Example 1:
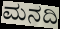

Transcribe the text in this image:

ಮನದಿ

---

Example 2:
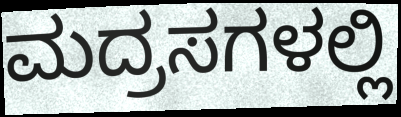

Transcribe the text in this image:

ಮದ್ರಸಗಳಲ್ಲಿ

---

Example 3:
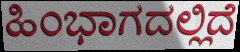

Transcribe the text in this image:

ಹಿಂಭಾಗದಲ್ಲಿದೆ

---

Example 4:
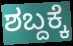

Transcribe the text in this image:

ಶಬ್ದಕ್ಕೆ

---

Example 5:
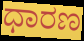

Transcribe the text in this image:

ಧಾರಣ